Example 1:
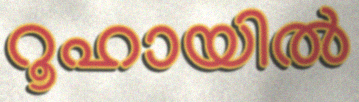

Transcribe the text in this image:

റൂഹായിൽ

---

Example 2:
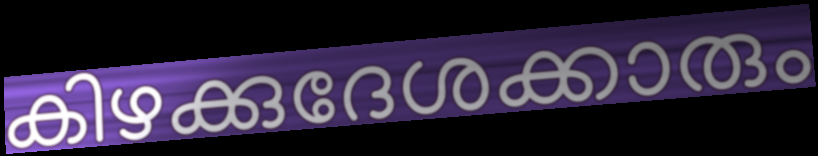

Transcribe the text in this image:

കിഴക്കുദേശക്കാരും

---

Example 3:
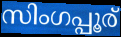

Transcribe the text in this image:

സിംഗപ്പൂര്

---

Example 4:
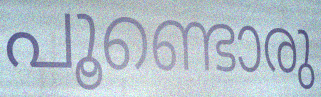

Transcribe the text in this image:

പൂണ്ടൊരു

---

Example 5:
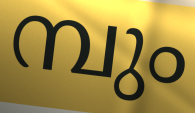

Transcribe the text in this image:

മ്പും